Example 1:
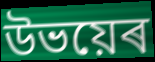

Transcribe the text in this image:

উভয়েৰ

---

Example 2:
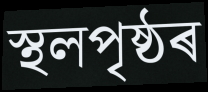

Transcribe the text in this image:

স্থলপৃষ্ঠৰ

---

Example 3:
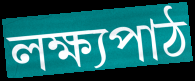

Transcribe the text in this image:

লক্ষ্যপাঠ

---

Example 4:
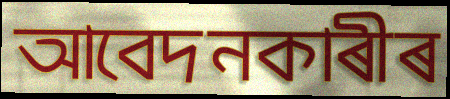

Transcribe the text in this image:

আবেদনকাৰীৰ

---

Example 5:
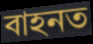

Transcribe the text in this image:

বাহনত